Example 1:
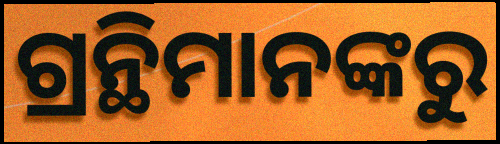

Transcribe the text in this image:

ଗ୍ରନ୍ଥିମାନଙ୍କରୁ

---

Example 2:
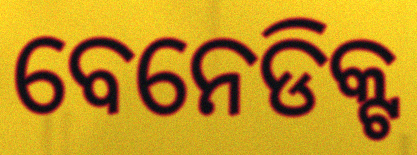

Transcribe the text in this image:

ବେନେଡିକ୍ଟ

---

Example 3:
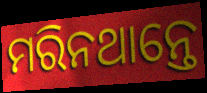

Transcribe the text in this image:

ମରିନଥାନ୍ତେ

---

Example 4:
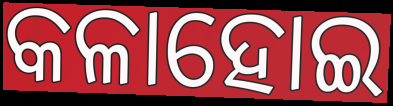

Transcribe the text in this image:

କଳାହୋଇ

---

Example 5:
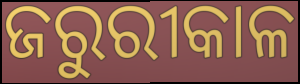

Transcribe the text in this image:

ଜରୁରୀକାଳ